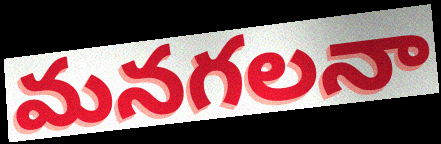
మనగలనా